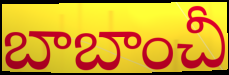
బాబాంచీ